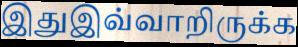
இதுஇவ்வாறிருக்க